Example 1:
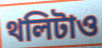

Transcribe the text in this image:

থলিটাও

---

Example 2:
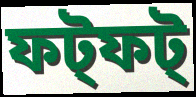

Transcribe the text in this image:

ফট্ফট্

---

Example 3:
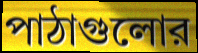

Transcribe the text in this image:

পাঠাগুলোর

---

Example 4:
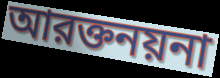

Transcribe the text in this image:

আরক্তনয়না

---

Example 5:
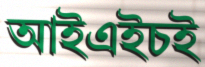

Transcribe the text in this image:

আইএইচই